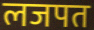
लजपत